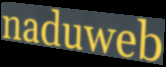
naduweb